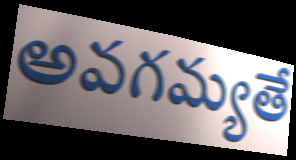
అవగమ్యతే